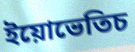
ইয়োভেতিচ